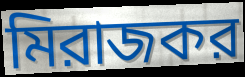
মিরাজকর